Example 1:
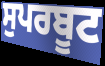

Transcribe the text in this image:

ਸੁਪਰਬੂਟ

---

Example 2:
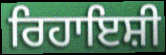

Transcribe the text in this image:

ਰਿਹਾਇਸ਼ੀ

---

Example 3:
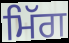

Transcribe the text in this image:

ਮਿੱਗ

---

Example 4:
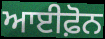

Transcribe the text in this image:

ਆਈਫ਼ੋਨ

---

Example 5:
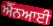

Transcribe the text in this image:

ਐੱਨਆਈ